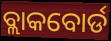
ବ୍ଲାକବୋର୍ଡ